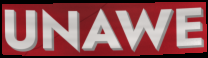
UNAWE